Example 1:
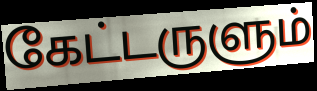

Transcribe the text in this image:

கேட்டருளும்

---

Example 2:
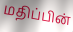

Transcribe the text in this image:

மதிப்பின்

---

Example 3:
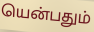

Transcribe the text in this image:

யென்பதும்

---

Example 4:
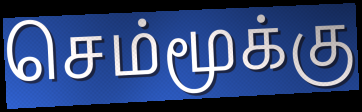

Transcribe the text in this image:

செம்மூக்கு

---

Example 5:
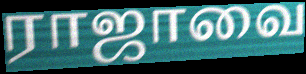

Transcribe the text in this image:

ராஜாவை